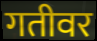
गतीवर